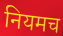
नियमच